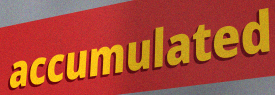
accumulated